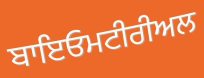
ਬਾਇਓਮਟੀਰੀਅਲ